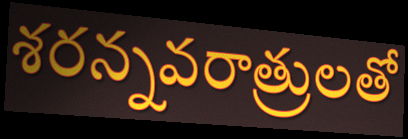
శరన్నవరాత్రులతో